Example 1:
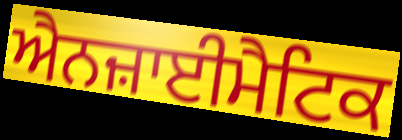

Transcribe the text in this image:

ਐਨਜ਼ਾਈਮੈਟਿਕ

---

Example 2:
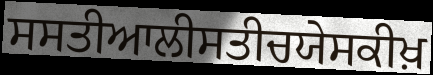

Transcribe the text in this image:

ਸਸਤੀਆਲੀਸਤੀਚਯੇਸਕੀਖ਼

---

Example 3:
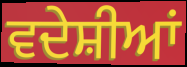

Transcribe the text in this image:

ਵਦੇਸ਼ੀਆਂ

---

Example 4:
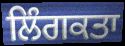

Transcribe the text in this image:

ਲਿੰਗਕਤਾ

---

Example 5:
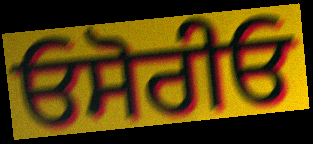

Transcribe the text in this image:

ਓਸੋਰੀਓ